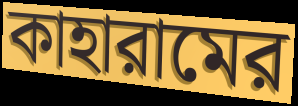
কাহারামের